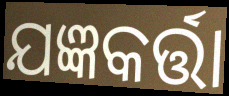
ଯଜ୍ଞକର୍ତ୍ତା